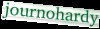
journohardy